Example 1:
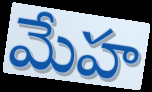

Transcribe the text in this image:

మేహ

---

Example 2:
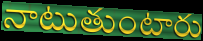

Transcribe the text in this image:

నాటుతుంటారు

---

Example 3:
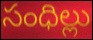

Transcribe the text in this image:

సంధిల్లు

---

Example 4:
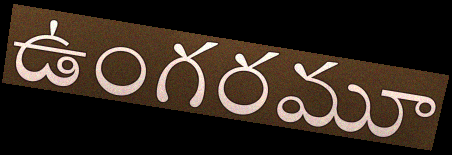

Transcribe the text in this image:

ఉంగరమూ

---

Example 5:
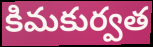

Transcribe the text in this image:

కిమకుర్వత